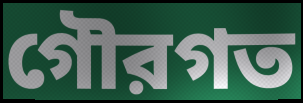
গৌরগত